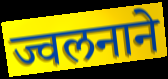
ज्वलनाने